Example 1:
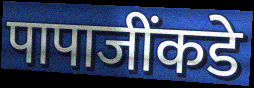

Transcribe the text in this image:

पापाजींकडे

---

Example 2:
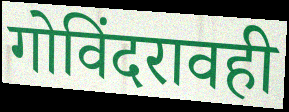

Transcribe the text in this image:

गोविंदरावही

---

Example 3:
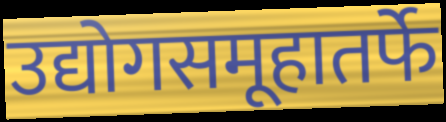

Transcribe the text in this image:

उद्योगसमूहातर्फे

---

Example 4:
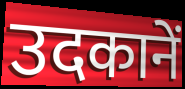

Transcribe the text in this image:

उदकानें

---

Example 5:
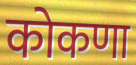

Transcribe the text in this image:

कोकणा